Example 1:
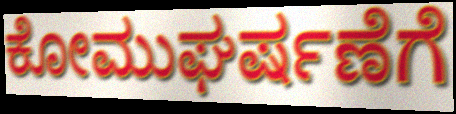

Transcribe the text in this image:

ಕೋಮುಘರ್ಷಣೆಗೆ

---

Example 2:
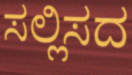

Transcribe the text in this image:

ಸಲ್ಲಿಸದ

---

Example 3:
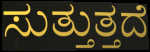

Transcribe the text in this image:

ಸುತ್ತುತ್ತದೆ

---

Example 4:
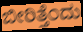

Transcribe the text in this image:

ಬೀರಿತ್ತೆಂದು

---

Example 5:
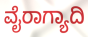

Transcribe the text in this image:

ವೈರಾಗ್ಯಾದಿ